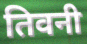
तिवनी